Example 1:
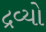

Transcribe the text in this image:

દ્રવ્યો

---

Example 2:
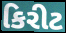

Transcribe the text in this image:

કિરીટ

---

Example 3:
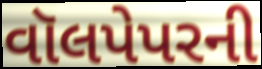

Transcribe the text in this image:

વૉલપેપરની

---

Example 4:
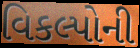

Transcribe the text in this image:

વિકલ્પોની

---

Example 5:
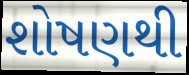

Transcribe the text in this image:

શોષણથી